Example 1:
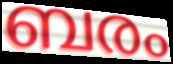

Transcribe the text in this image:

ബരം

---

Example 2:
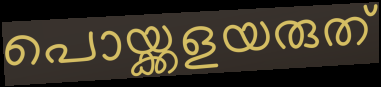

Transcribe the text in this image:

പൊയ്ക്കളയരുത്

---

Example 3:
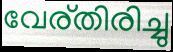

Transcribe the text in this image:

വേര്തിരിച്ചു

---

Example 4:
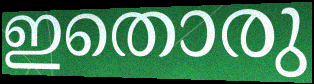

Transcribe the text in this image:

ഇതൊരു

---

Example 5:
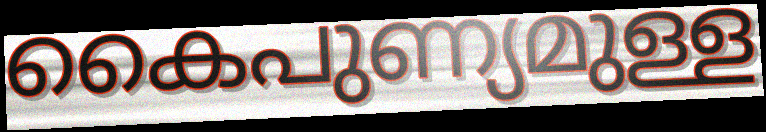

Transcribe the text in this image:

കൈപുണ്യമുള്ള